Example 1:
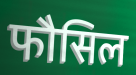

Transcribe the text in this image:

फौसिल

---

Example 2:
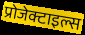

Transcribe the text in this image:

प्रोजेक्टाइल्स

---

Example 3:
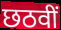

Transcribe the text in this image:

छठवीं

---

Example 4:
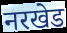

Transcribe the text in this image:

नरखेड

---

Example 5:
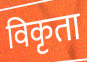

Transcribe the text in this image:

विकृता